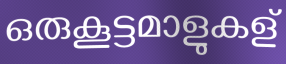
ഒരുകൂട്ടമാളുകള്